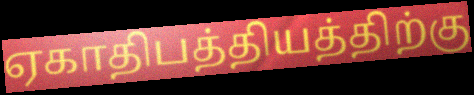
ஏகாதிபத்தியத்திற்கு